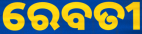
ରେବତୀ